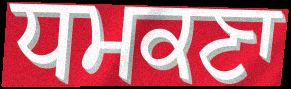
ਧਮਕਣਾ